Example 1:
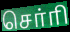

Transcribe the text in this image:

செர்ரி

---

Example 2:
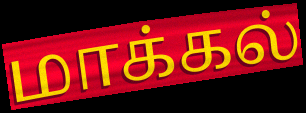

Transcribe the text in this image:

மாக்கல்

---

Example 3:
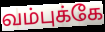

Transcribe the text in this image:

வம்புக்கே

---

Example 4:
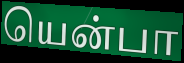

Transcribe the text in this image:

யென்பா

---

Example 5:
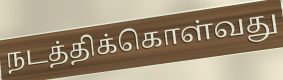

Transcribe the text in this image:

நடத்திக்கொள்வது